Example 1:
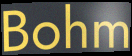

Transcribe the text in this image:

Bohm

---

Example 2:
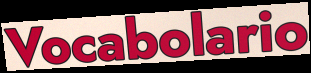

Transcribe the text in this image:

Vocabolario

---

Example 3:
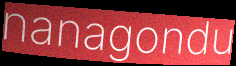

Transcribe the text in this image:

nanagondu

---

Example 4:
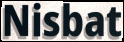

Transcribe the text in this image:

Nisbat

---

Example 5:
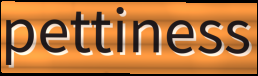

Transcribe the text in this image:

pettiness